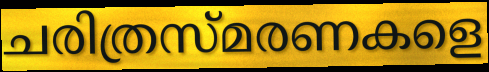
ചരിത്രസ്മരണകളെ